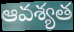
ఆవశ్యత